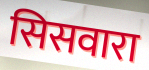
सिसवारा